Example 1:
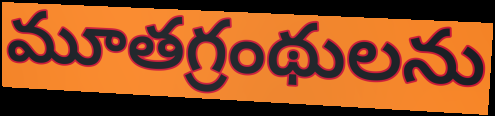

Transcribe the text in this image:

మూతగ్రంథులను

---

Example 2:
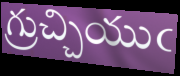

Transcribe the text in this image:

గ్రుచ్చియుఁ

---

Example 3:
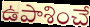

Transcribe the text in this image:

ఉపాశించే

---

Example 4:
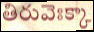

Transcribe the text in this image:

తిరువెఃక్కా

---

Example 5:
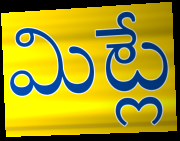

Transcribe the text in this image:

మిట్లే